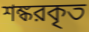
শঙ্করকৃত